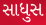
સાધુસ